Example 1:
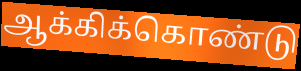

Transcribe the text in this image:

ஆக்கிக்கொண்டு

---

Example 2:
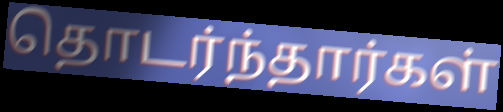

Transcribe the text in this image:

தொடர்ந்தார்கள்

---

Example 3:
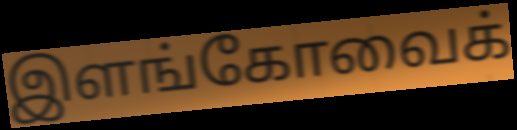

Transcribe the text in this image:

இளங்கோவைக்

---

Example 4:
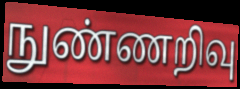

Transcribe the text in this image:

நுண்ணறிவு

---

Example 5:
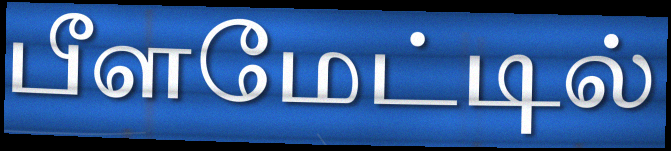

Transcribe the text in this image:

பீளமேட்டில்